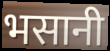
भसानी